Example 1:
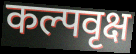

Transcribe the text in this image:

कल्‍पवृक्ष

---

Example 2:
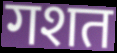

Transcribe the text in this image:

गशत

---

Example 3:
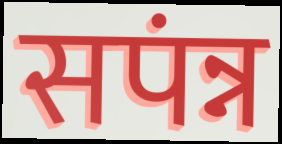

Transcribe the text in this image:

सपंन्न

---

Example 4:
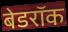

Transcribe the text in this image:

बेडरॉक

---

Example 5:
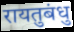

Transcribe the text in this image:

रायतुबंधु